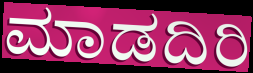
ಮಾಡದಿರಿ